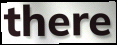
there